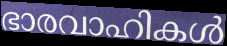
ഭാരവാഹികൾ